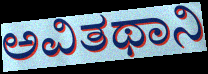
ಅವಿತಥಾನಿ